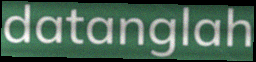
datanglah